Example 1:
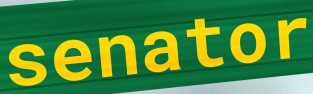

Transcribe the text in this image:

senator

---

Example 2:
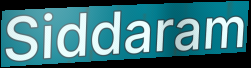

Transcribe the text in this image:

Siddaram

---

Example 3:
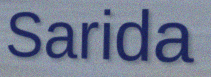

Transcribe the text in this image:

Sarida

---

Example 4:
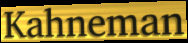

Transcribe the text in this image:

Kahneman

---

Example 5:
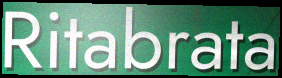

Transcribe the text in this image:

Ritabrata